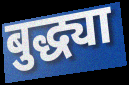
बुद्ध्या